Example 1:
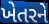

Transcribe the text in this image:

ખેતરને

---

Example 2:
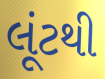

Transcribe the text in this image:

લૂંટથી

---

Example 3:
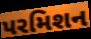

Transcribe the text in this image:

પરમિશન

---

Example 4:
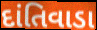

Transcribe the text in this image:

દાંતિવાડા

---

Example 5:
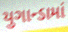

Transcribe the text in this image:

યુગાન્ડામાં